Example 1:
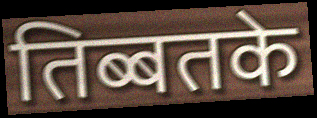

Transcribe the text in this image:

तिब्बतके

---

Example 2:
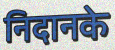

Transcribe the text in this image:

निदानके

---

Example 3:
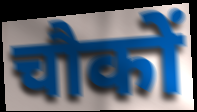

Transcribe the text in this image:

चौकों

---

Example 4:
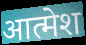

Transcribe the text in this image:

आत्मेश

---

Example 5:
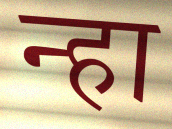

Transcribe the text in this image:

न्हा